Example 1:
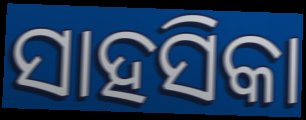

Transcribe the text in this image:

ସାହସିକା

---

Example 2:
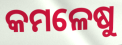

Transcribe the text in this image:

କମଳେଷୁ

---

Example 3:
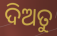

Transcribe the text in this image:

ଦିଅତୁ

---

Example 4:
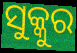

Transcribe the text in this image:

ସୁକ୍କୁର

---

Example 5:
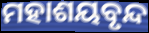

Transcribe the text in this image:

ମହାଶୟବୃନ୍ଦ